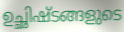
ഉച്ഛിഷ്ടങ്ങളുടെ